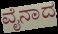
ವೈನಾದ